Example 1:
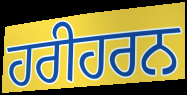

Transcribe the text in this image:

ਹਰੀਹਰਨ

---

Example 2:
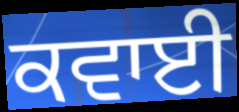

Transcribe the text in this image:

ਕਵਾਈ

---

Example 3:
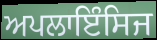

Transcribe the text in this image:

ਅਪਲਾਇੰਸਿਜ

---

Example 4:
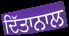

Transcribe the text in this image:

ਦਿੱਤਾਨਾਲ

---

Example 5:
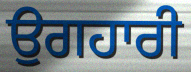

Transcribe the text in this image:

ਉਗਹਾਰੀ